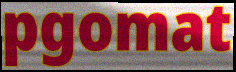
pgomat